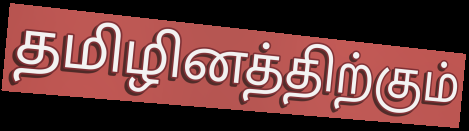
தமிழினத்திற்கும்